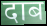
दाब